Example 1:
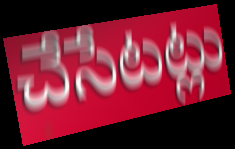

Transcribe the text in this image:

చేసేటట్లు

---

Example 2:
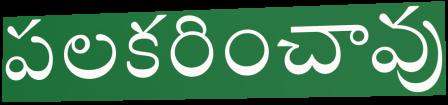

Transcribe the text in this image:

పలకరించావు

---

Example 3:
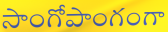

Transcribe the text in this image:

సాంగోపాంగంగా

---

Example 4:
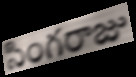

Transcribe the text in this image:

సింగరాజు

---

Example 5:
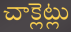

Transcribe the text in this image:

చాక్లెట్లు